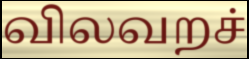
விலவறச்